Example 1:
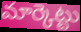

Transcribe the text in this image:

మార్కెట్టు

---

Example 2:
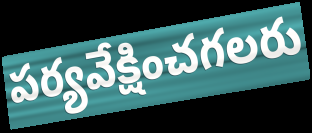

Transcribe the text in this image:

పర్యవేక్షించగలరు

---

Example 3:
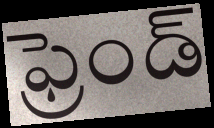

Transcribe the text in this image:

ఫ్రెండ్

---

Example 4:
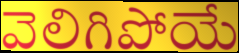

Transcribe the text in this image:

వెలిగిపోయే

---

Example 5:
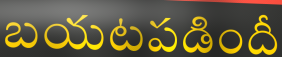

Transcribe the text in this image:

బయటపడిందీ